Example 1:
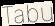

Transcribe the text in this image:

Tabu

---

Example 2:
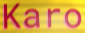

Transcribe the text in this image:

Karo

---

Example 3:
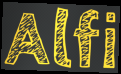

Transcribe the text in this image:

Alfi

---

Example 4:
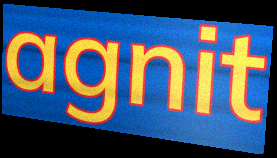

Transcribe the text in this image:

agnit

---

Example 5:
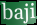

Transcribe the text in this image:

baji